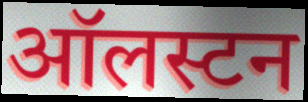
ऑलस्टन